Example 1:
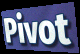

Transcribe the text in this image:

Pivot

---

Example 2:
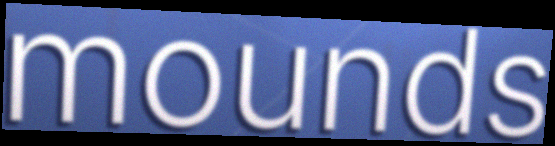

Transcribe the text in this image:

mounds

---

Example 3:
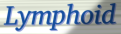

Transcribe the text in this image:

Lymphoid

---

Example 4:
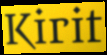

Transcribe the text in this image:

Kirit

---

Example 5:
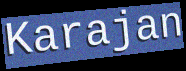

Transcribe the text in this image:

Karajan